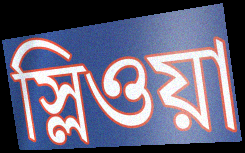
স্লিওয়া